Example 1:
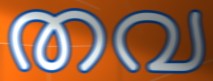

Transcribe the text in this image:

തവ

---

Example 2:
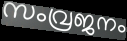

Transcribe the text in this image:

സംവ്രജനം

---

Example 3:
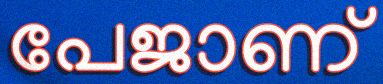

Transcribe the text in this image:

പേജാണ്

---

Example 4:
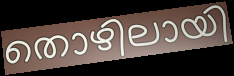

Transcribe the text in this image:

തൊഴിലായി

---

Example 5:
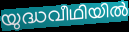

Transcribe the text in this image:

യുദ്ധവീഥിയിൽ